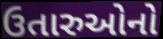
ઉતારુઓનો